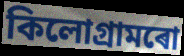
কিলোগ্ৰামৰো